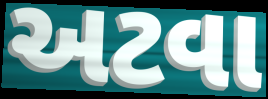
અટવા